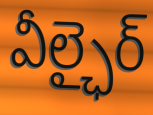
వీల్ఛైర్